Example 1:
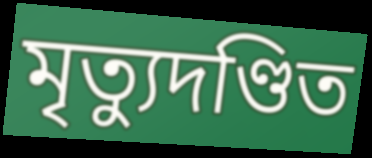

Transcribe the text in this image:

মৃত্যুদণ্ডিত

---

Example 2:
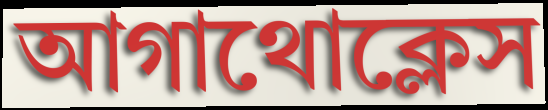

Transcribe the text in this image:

আগাথোক্লেস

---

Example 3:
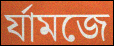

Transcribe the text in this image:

র্যামজে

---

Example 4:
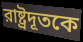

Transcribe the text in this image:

রাষ্ট্রদূতকে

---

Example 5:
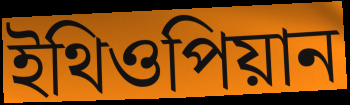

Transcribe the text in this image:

ইথিওপিয়ান